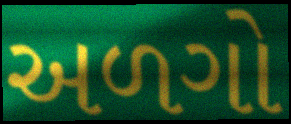
અળગો